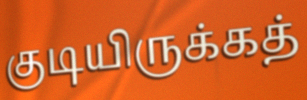
குடியிருக்கத்